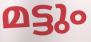
മട്ടും